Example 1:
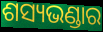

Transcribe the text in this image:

ଶସ୍ୟଭଣ୍ଡାର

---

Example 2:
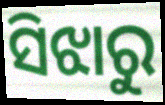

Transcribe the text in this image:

ସିଝାରୁ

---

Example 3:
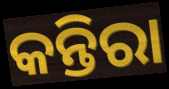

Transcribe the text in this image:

କନ୍ତିରା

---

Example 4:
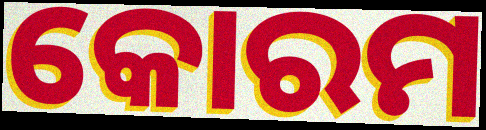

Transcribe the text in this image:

କୋରମ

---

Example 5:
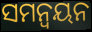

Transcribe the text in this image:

ସମନ୍ୱୟନ